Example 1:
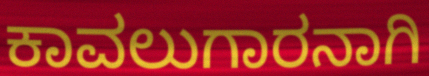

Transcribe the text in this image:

ಕಾವಲುಗಾರನಾಗಿ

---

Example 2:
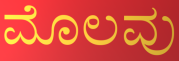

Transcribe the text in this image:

ಮೊಲವು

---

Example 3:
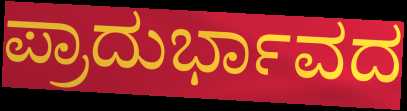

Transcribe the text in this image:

ಪ್ರಾದುರ್ಭಾವದ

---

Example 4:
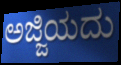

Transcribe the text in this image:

ಅಜ್ಜಿಯದು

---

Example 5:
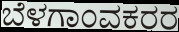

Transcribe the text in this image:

ಬೆಳಗಾಂವಕರರ